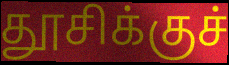
தூசிக்குச்